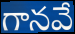
గానవే